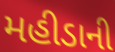
મહીડાની